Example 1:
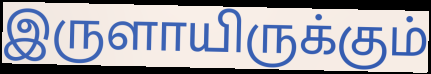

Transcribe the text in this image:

இருளாயிருக்கும்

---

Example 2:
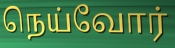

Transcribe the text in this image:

நெய்வோர்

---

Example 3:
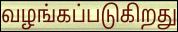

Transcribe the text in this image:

வழங்கப்படுகிறது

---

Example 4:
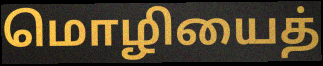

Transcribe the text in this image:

மொழியைத்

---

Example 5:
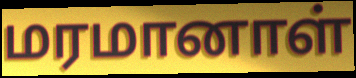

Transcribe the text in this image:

மரமானாள்